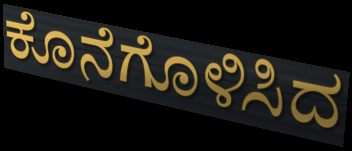
ಕೊನೆಗೊಳಿಸಿದ